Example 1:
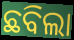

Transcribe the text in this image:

ଛବିଲା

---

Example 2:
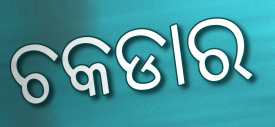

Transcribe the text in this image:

ଚକଡାର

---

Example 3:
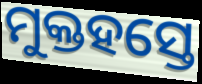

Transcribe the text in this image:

ମୁକ୍ତହସ୍ତେ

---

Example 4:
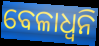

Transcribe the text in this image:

ବେଳାଧ୍ୱନି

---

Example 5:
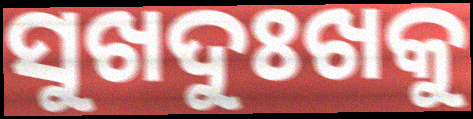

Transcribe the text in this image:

ସୁଖଦୁଃଖକୁ